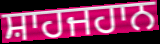
ਸ਼ਾਹਜਹਾਨ